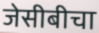
जेसीबीचा